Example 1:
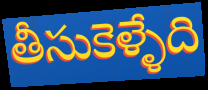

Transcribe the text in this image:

తీసుకెళ్ళేది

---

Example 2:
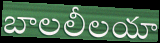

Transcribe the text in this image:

బాలలీలయా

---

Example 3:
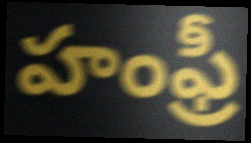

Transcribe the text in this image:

హంఫ్రీ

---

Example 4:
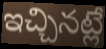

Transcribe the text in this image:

ఇచ్చినట్లే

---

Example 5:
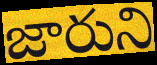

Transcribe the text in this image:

జారుని